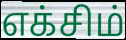
எக்சிம்